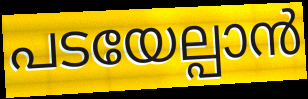
പടയേല്പാൻ